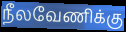
நீலவேணிக்கு